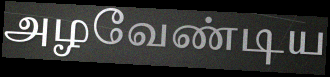
அழவேண்டிய